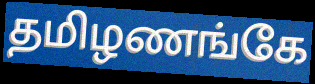
தமிழணங்கே